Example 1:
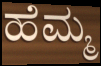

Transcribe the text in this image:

ಹೆಮ್ಮ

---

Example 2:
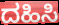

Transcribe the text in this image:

ದಹಿಸಿ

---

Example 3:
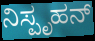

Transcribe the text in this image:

ನಿಸ್ಪೃಹನ್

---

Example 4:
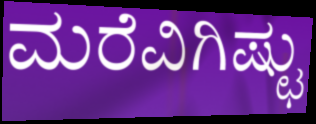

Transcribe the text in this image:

ಮರೆವಿಗಿಷ್ಟು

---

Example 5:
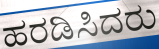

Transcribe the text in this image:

ಹರಡಿಸಿದರು